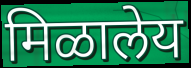
मिळालेय